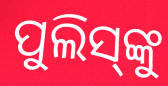
ପୁଲିସ୍‌ଙ୍କୁ